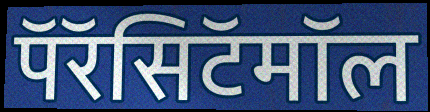
पॅरॅसिटॅमॉल